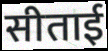
सीताई